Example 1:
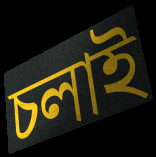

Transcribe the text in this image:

চলাই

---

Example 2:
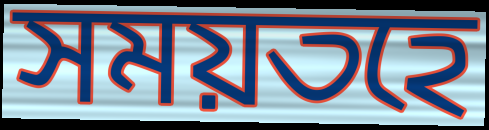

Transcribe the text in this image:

সময়তহে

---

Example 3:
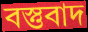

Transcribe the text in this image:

বস্তুবাদ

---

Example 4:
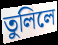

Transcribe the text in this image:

তুলিলে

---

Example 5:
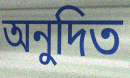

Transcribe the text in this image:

অনুদিত